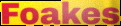
Foakes